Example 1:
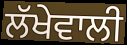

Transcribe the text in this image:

ਲੱਖੇਵਾਲੀ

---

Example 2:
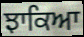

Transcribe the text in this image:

ਝਾਕਿਆ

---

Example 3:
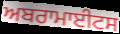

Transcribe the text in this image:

ਅਬਰਾਮਾਈਟਸ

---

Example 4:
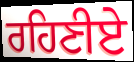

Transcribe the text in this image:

ਰਹਿਣੀਏ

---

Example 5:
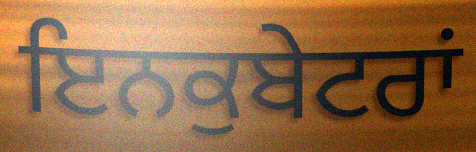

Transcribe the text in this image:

ਇਨਕੁਬੇਟਰਾਂ